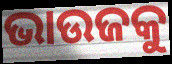
ଭାଉଜକୁ